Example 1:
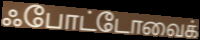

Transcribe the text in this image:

ஃபோட்டோவைக்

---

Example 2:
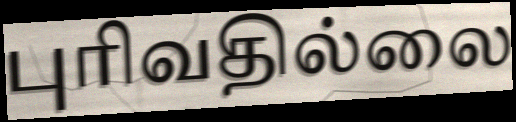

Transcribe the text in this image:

புரிவதில்லை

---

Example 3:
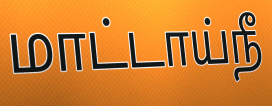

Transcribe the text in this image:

மாட்டாய்நீ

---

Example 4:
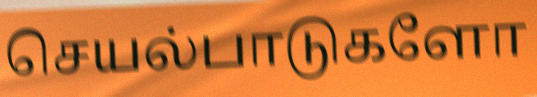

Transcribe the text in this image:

செயல்பாடுகளோ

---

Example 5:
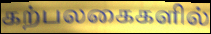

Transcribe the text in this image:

கற்பலகைகளில்